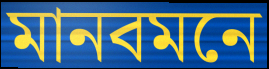
মানবমনে